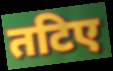
तटिए